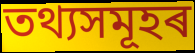
তথ্যসমূহৰ